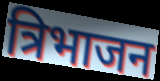
त्रिभाजन